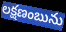
లక్షణంబును